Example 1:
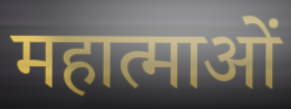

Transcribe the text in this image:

महात्माओं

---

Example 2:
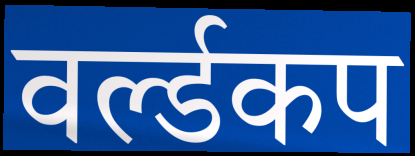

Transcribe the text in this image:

वर्ल्डकप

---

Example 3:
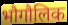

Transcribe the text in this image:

भौगौलिक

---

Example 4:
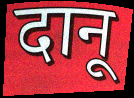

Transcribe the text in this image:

दानू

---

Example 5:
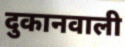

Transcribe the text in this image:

दुकानवाली